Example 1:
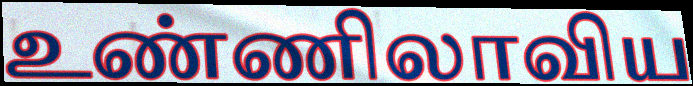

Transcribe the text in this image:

உண்ணிலாவிய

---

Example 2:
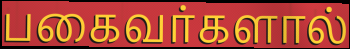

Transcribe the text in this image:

பகைவர்களால்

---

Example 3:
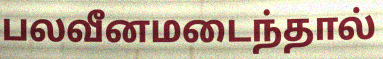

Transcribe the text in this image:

பலவீனமடைந்தால்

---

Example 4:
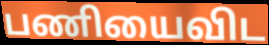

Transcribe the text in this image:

பணியைவிட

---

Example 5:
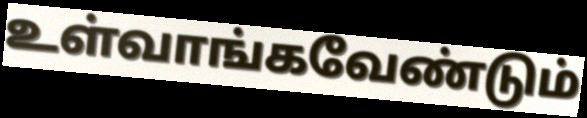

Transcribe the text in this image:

உள்வாங்கவேண்டும்